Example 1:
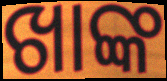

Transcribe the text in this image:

ଖାଙ୍କ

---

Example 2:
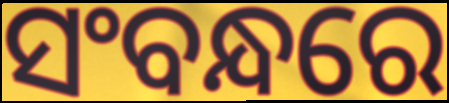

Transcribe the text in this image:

ସଂବନ୍ଧରେ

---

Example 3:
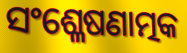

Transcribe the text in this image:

ସଂଶ୍ଳେଷଣାତ୍ମକ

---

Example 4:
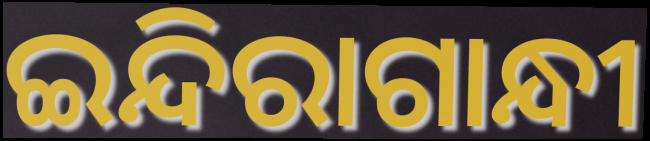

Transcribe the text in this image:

ଇନ୍ଦିରାଗାନ୍ଧୀ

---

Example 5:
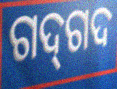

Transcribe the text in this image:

ଗଦ୍‌ଗଦ